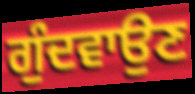
ਗੁੰਦਵਾਉਣ